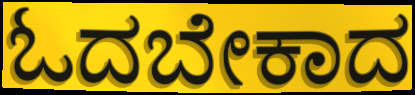
ಓದಬೇಕಾದ